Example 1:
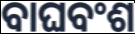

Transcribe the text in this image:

ବାଘବଂଶ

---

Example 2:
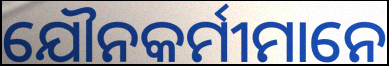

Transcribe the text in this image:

ଯୌନକର୍ମୀମାନେ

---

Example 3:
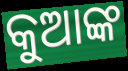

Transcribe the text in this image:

କୁଆଙ୍କ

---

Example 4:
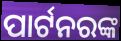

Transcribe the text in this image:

ପାର୍ଟନରଙ୍କ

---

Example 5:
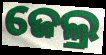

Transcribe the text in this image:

ଜେଲ୍ର